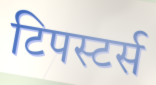
टिपस्टर्स